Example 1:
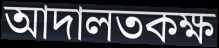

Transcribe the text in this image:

আদালতকক্ষ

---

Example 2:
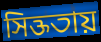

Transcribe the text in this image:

সিক্ততায়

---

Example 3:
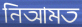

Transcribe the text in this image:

নিআমত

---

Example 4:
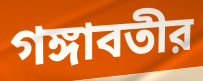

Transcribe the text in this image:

গঙ্গাবতীর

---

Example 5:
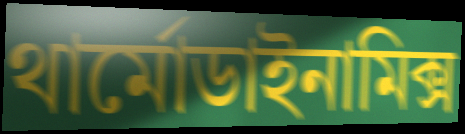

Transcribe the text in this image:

থার্মোডাইনামিক্স